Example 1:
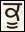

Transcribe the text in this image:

ਕੂ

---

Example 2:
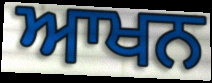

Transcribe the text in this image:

ਆਖਨ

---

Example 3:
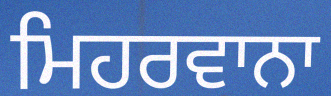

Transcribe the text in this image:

ਮਿਹਰਵਾਨਾ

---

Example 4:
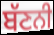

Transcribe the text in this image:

ਬੱਣਨੀ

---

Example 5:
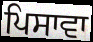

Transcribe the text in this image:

ਪਿਸਾਵਾ